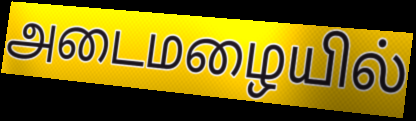
அடைமழையில்